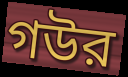
গউর